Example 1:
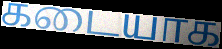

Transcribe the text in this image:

கடையாக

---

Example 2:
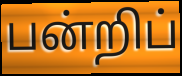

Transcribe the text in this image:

பன்றிப்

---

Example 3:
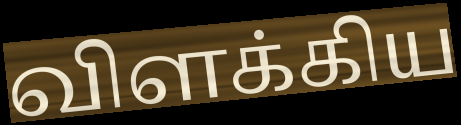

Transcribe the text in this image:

விளக்கிய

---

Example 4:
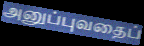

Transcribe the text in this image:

அனுப்புவதைப்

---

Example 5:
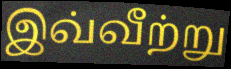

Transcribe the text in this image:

இவ்வீற்று